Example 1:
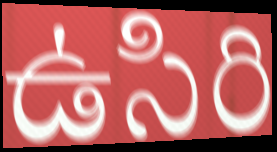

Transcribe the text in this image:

ఉసిరి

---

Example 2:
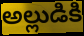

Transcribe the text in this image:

అల్లుడికి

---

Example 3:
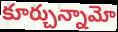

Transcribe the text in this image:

కూర్చున్నామో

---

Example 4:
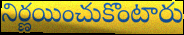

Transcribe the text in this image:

నిర్ణయించుకొంటారు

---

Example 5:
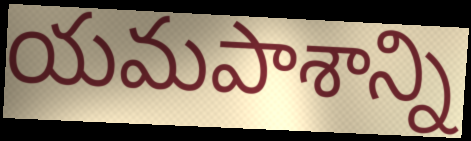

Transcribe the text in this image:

యమపాశాన్ని